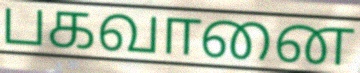
பகவானை